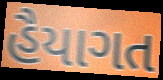
હૈયાગત